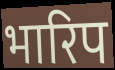
भारिप